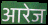
आरेज